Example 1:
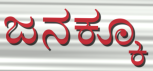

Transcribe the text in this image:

ಜನಕ್ಕೂ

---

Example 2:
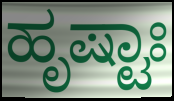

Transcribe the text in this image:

ಹೃಷ್ಟಾಃ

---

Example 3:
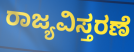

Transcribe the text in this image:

ರಾಜ್ಯವಿಸ್ತರಣೆ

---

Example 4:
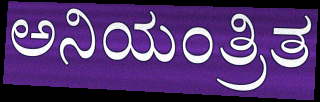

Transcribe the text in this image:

ಅನಿಯಂತ್ರಿತ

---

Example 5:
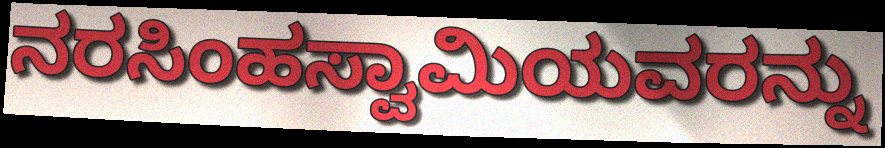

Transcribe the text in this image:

ನರಸಿಂಹಸ್ವಾಮಿಯವರನ್ನು